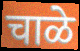
चाळे